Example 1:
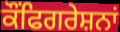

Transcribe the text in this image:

ਕੌਂਫਿਗਰੇਸ਼ਨਾਂ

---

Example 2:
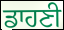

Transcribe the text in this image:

ਡਾਹਣੀ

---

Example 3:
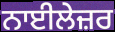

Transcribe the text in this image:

ਨਾਈਲੇਜ਼ਰ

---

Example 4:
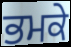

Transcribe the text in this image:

ਭਮਕੇ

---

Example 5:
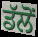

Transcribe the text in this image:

ਡੱਲੋਂ